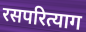
रसपरित्याग